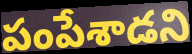
పంపేశాడని